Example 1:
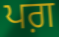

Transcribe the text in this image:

ਪਗ਼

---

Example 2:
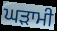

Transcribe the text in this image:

ਘੜਾਮੀ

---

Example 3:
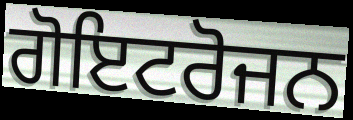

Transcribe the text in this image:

ਗੋਇਟਰੋਜਨ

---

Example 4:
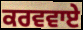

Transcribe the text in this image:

ਕਰਵਵਾਏ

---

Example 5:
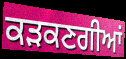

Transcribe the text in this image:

ਕੜਕਣਗੀਆਂ